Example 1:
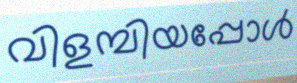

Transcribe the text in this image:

വിളമ്പിയപ്പോൾ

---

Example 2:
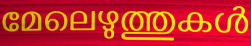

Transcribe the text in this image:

മേലെഴുത്തുകൾ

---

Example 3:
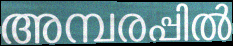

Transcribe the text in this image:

അമ്പരപ്പിൽ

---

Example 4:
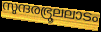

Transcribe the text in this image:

സുന്ദരഭ്രൂലലാടം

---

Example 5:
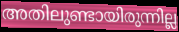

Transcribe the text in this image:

അതിലുണ്ടായിരുന്നില്ല